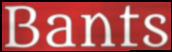
Bants